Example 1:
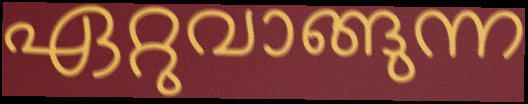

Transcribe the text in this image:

ഏറ്റുവാങ്ങുന്ന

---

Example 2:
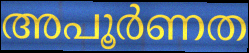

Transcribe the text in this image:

അപൂർണത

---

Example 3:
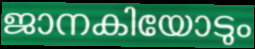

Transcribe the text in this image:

ജാനകിയോടും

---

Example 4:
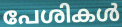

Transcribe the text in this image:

പേശികൾ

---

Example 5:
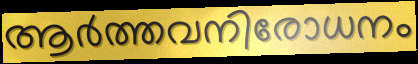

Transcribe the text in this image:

ആർത്തവനിരോധനം